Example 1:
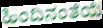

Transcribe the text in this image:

ಹಿಂದಿನಂತೆಯೆ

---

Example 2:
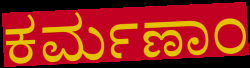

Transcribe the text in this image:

ಕರ್ಮಣಾಂ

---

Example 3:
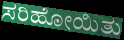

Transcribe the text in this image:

ಸರಿಹೋಯಿತು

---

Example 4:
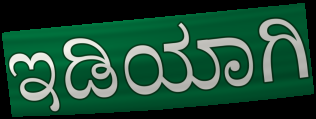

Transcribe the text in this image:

ಇಡಿಯಾಗಿ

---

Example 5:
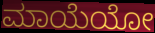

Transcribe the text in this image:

ಮಾಯೆಯೋ